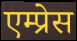
एम्प्रेस